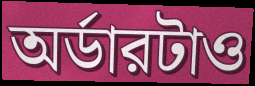
অর্ডারটাও